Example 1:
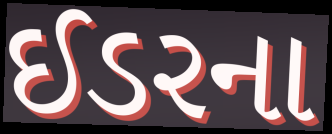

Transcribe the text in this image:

ઈડરના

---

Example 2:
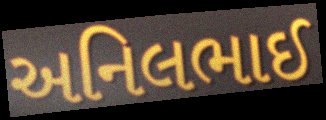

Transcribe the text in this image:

અનિલભાઈ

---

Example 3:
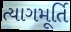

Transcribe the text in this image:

ત્યાગમૂર્તિ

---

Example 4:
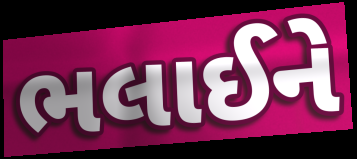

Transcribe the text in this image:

ભલાઈને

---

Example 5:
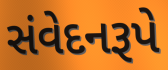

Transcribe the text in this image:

સંવેદનરૂપે